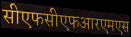
सीएफसीएफआरएमएस